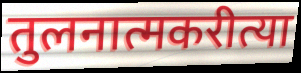
तुलनात्मकरीत्या